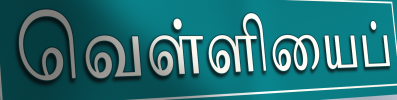
வெள்ளியைப்